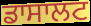
ਡਾਸਾਲਟ